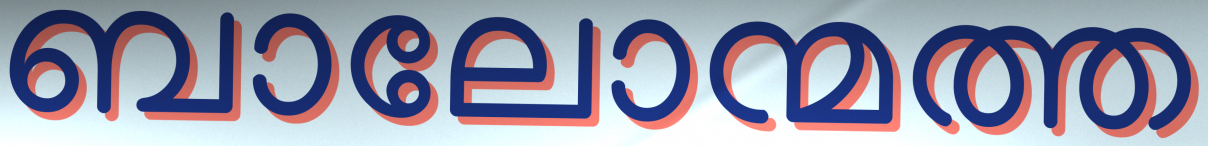
ബാലോന്മത്ത